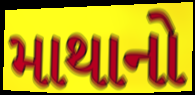
માથાનો